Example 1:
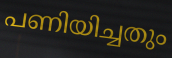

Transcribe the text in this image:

പണിയിച്ചതും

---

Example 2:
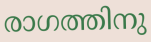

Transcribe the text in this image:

രാഗത്തിനു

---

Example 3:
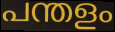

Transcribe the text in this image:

പന്തളം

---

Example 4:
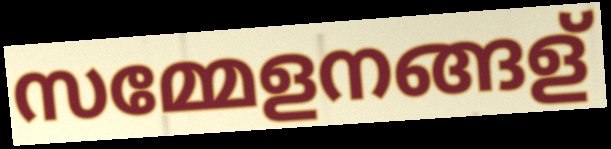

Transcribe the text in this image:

സമ്മേളനങ്ങള്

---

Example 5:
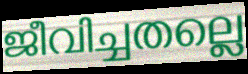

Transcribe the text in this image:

ജീവിച്ചതല്ലെ